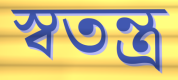
স্ৱতন্ত্ৰ